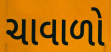
ચાવાળો